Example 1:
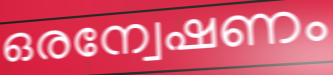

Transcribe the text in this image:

ഒരന്വേഷണം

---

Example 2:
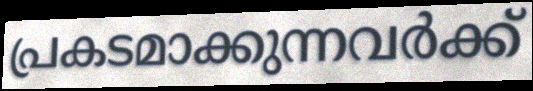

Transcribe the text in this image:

പ്രകടമാക്കുന്നവർക്ക്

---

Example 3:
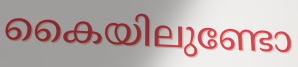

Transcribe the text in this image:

കൈയിലുണ്ടോ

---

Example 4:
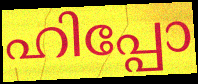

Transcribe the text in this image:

ഹിപ്പോ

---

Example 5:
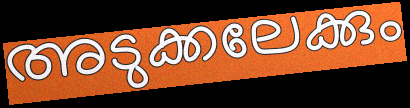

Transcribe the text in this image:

അടുക്കലേക്കും